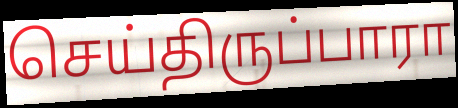
செய்திருப்பாரா